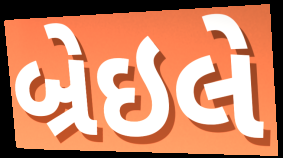
બ્રેઇલે